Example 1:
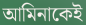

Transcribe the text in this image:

আমিনাকেই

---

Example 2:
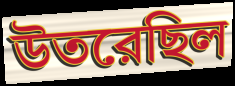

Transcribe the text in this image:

উতরেছিল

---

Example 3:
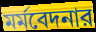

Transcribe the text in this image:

মর্মবেদনার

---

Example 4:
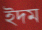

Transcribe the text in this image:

ইদম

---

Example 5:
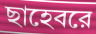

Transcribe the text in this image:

ছাহেবরে